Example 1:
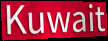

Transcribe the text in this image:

Kuwait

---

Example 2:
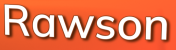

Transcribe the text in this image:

Rawson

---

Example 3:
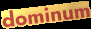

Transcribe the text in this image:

dominum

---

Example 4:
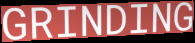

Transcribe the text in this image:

GRINDING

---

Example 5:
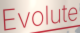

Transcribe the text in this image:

Evolute